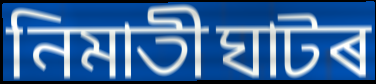
নিমাতীঘাটৰ